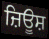
ਜ਼ਿਊਸ਼